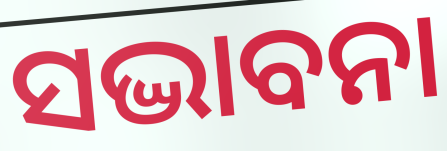
ସଦ୍ଭାବନା